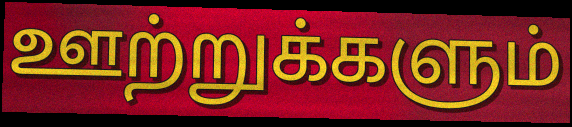
ஊற்றுக்களும்